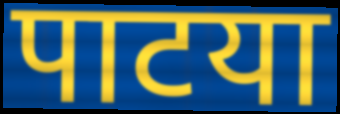
पाटया